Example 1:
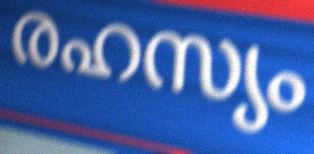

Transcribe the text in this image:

രഹസ്യം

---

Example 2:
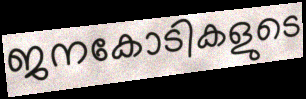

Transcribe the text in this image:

ജനകോടികളുടെ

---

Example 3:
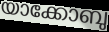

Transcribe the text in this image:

യാക്കോബു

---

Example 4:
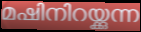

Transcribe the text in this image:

മഷിനിറയ്ക്കുന്ന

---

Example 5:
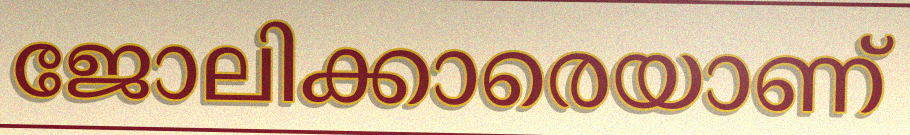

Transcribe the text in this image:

ജോലിക്കാരെയാണ്